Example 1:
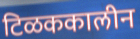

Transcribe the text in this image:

टिळककालीन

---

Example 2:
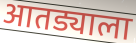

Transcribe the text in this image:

आतड्याला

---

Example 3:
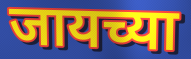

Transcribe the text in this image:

जायच्या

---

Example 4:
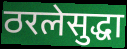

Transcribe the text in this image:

ठरलेसुद्धा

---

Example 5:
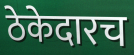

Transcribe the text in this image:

ठेकेदारच